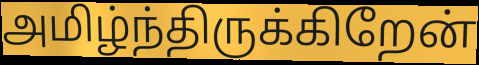
அமிழ்ந்திருக்கிறேன்